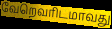
வேறெவரிடமாவது